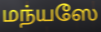
மந்யஸே